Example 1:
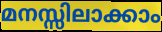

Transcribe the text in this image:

മനസ്സിലാക്കാം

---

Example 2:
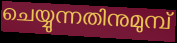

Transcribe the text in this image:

ചെയ്യുന്നതിനുമുമ്പ്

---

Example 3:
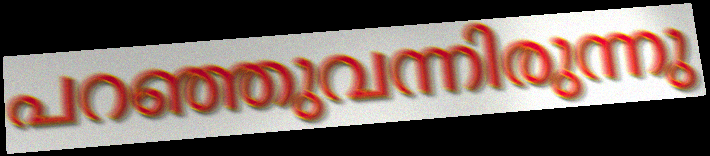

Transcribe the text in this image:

പറഞ്ഞുവന്നിരുന്നു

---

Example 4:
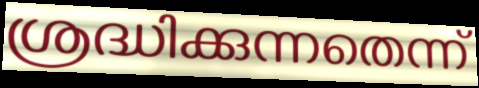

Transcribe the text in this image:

ശ്രദ്ധിക്കുന്നതെന്ന്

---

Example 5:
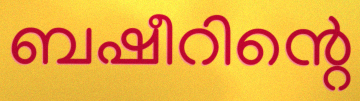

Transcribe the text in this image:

ബഷീറിന്റെ